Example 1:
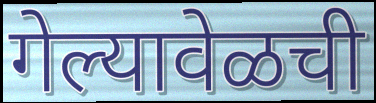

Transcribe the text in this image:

गेल्यावेळची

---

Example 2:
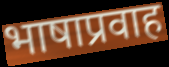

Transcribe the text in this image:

भाषाप्रवाह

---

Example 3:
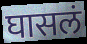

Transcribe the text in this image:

घासलं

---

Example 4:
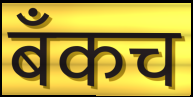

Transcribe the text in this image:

बँकच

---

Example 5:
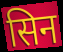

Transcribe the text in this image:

सिन